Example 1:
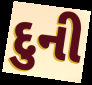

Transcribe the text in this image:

દુની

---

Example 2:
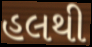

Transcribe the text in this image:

હલથી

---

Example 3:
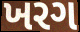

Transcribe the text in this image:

ખરગ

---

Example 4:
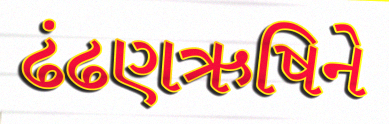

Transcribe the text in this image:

ઢંઢણઋષિને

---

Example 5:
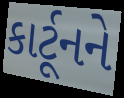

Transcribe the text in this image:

કાર્ટૂનને